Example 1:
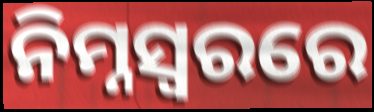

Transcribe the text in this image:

ନିମ୍ନସ୍ୱରରେ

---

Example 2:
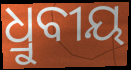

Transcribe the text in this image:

ଧ୍ରୁବୀୟ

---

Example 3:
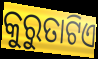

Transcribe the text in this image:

କୁରୁତାଟିଏ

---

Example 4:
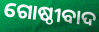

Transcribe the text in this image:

ଗୋଷ୍ଠୀବାଦ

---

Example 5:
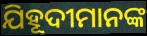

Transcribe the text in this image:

ଯିହୂଦୀମାନଙ୍କ